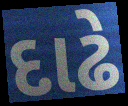
દાઢે